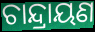
ଚାନ୍ଦ୍ରାୟଣ